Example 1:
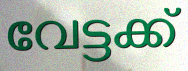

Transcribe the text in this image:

വേട്ടക്ക്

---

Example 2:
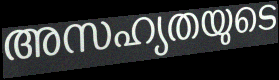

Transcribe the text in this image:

അസഹ്യതയുടെ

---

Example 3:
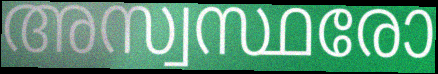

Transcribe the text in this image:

അസ്വസ്ഥരോ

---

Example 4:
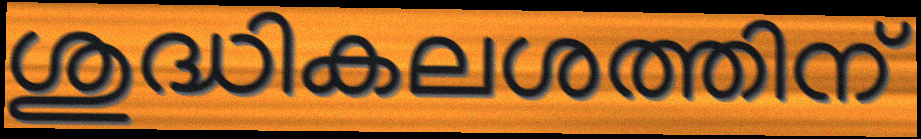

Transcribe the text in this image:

ശുദ്ധികലശത്തിന്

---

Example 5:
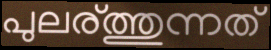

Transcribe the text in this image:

പുലര്ത്തുന്നത്